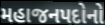
મહાજનપદોનો